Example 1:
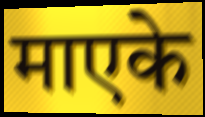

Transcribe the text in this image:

माएके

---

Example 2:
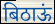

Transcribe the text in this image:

बिठाऊं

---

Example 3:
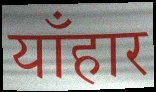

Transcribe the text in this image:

याँहार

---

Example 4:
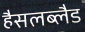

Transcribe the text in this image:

हैसलब्लैड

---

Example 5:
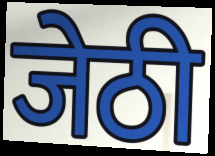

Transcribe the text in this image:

जेठी